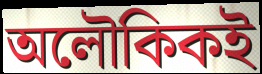
অলৌকিকই